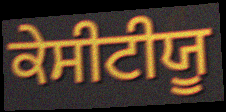
ਕੇਸੀਟੀਯੂ